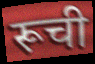
रूची